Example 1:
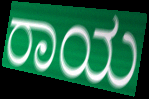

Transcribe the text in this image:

ರಾಯ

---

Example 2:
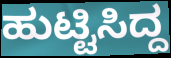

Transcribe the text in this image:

ಹುಟ್ಟಿಸಿದ್ದ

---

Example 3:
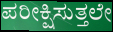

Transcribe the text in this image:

ಪರೀಕ್ಷಿಸುತ್ತಲೇ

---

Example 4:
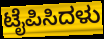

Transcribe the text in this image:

ಟೈಪಿಸಿದಳು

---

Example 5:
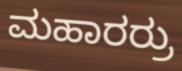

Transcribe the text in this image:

ಮಹಾರರ್ರು